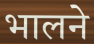
भालने